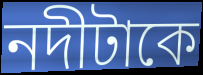
নদীটাকে